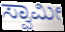
ಸ್ವಾಮೀ